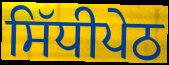
ਸਿੱਧੀਪੇਠ